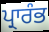
ਪ੍ਰਾਰੰਭ